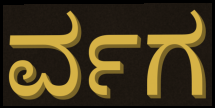
ರ್ವಗ